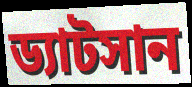
ড্যাটসান